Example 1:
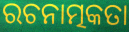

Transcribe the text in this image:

ରଚନାତ୍ମକତା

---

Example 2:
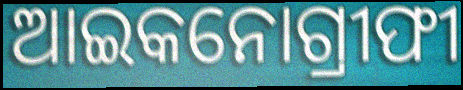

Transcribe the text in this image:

ଆଇକନୋଗ୍ରୀଫୀ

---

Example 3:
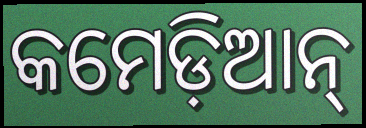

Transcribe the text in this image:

କମେଡ଼ିଆନ୍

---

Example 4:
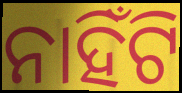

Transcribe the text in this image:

ନାହିଁଟି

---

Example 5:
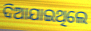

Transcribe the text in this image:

ଦିଆଯାଇଥିଲେ